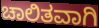
ಚಾಲಿತವಾಗಿ